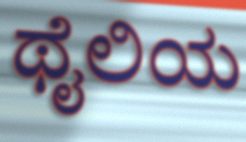
ಥೈಲಿಯ